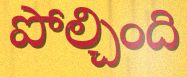
పోల్చింది